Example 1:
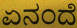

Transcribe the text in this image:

ಏನಂದೆ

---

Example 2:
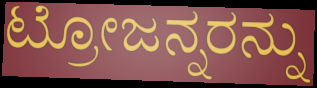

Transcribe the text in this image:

ಟ್ರೋಜನ್ನರನ್ನು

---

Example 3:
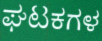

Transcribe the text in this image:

ಘಟಕಗಳ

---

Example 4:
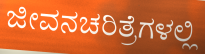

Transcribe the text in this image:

ಜೀವನಚರಿತ್ರೆಗಳಲ್ಲಿ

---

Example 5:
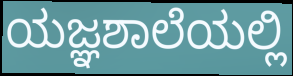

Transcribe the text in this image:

ಯಜ್ಞಶಾಲೆಯಲ್ಲಿ